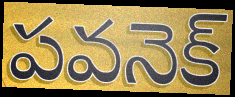
పవనెక్